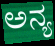
ಅನ್ಯ